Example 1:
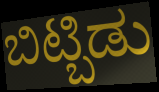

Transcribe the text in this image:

ಬಿಟ್ಬಿಡು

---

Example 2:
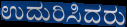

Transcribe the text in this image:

ಉದುರಿಸಿದರು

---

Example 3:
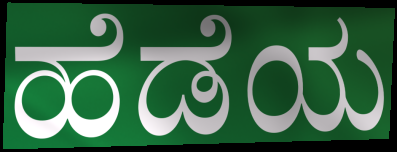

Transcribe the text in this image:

ಹೆಡೆಯ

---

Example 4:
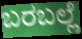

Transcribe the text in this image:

ಬರಬಲ್ಲೆ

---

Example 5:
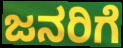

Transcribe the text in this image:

ಜನರಿಗೆ